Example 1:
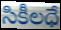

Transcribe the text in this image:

సికీలధే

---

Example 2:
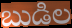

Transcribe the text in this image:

బుడిల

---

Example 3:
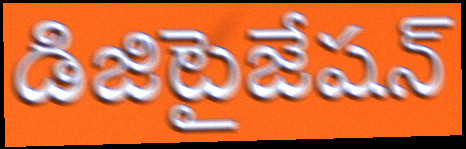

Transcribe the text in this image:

డిజిటైజేషన్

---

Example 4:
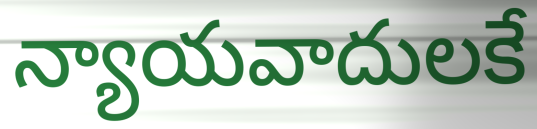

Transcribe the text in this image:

న్యాయవాదులకే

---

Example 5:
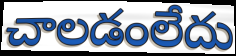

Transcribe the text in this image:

చాలడంలేదు